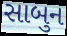
સાબુન